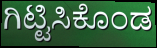
ಗಿಟ್ಟಿಸಿಕೊಂಡ